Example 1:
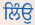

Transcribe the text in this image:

ਲਿੰਉ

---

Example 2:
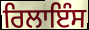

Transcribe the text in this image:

ਰਿਲਾਇੰਸ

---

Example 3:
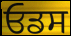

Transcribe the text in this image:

ਓਡਸ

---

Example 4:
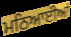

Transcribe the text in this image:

ਮਠਿਆਈਆਂ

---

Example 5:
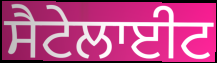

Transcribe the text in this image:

ਸੈਟੇਲਾਈਟ